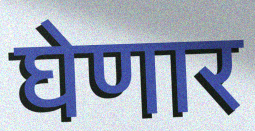
घेणार